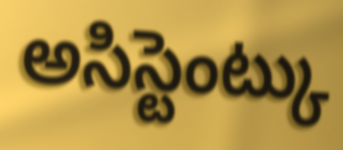
అసిస్టెంట్కు